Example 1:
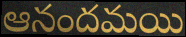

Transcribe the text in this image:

ఆనందమయి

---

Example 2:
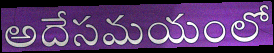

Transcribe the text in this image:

అదేసమయంలో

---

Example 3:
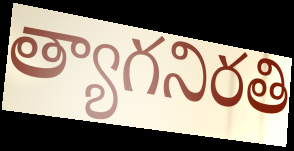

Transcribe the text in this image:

త్యాగనిరతి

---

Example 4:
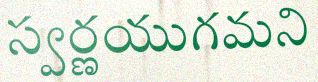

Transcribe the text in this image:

స్వర్ణయుగమని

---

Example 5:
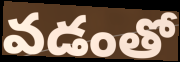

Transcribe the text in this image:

వడంతో